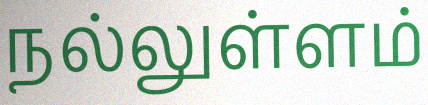
நல்லுள்ளம்